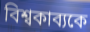
বিশ্বকাব্যকে